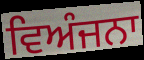
ਵਿਅੰਜਨਾ